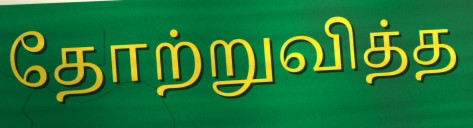
தோற்றுவித்த